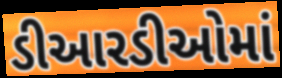
ડીઆરડીઓમાં